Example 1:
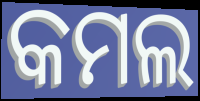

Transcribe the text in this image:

କମଲ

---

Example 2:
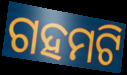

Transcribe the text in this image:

ଗହମଟି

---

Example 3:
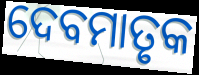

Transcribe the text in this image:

ଦେବମାତୃକ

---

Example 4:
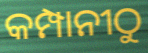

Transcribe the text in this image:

କମ୍ପାନୀଠୁ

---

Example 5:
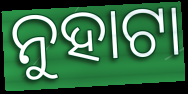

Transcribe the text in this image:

ନୁହାଟା